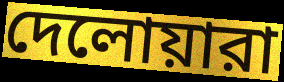
দেলোয়ারা